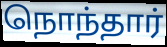
நொந்தார்